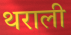
थराली